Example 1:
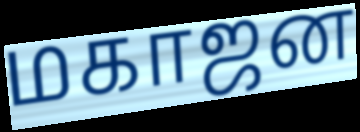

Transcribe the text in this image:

மகாஜன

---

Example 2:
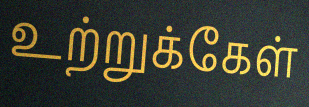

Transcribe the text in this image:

உற்றுக்கேள்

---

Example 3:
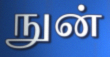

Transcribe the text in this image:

நுன்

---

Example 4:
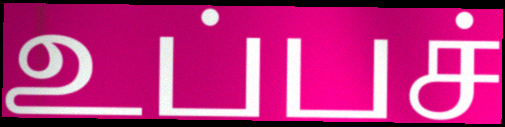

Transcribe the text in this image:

உப்பச்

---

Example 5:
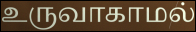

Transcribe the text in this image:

உருவாகாமல்